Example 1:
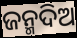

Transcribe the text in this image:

ଜନ୍ମଦିଅ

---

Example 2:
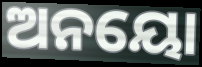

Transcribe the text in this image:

ଅନୟୋ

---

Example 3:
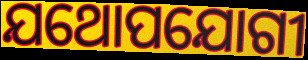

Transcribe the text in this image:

ଯଥୋପଯୋଗୀ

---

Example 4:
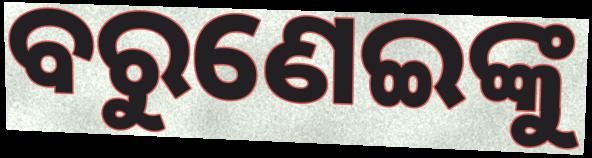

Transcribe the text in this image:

ବରୁଣେଇଙ୍କୁ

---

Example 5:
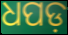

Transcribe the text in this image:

ଧପଡ଼